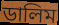
ডালিম